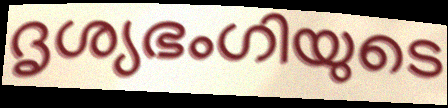
ദൃശ്യഭംഗിയുടെ